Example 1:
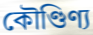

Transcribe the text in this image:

কৌণ্ডিণ্য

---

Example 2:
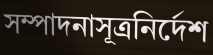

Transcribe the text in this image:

সম্পাদনাসূত্রনির্দেশ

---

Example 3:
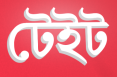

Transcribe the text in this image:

টেইট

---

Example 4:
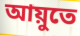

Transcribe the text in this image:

আয়ুতে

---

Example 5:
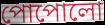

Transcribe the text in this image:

পোপোলো